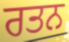
ਰਤਨ